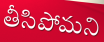
తీసిపోమని